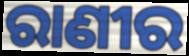
ରାଣୀର